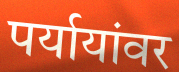
पर्यायांवर